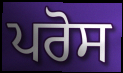
ਪਰੋਸ